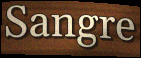
Sangre